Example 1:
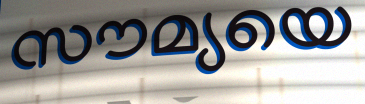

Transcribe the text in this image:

സൗമ്യയെ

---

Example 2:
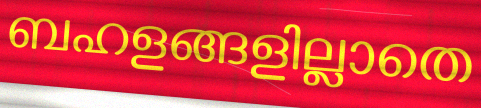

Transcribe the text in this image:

ബഹളങ്ങളില്ലാതെ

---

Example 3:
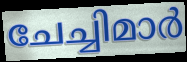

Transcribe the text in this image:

ചേച്ചിമാർ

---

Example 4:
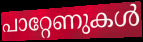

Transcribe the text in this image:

പാറ്റേണുകൾ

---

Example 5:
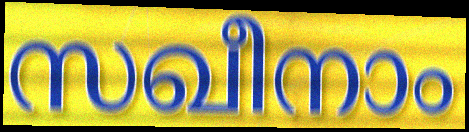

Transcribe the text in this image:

സഖീനാം